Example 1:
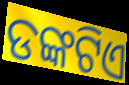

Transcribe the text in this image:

ଡଙ୍କଟିଏ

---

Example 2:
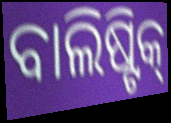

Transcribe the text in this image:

ବାଲିଷ୍ଟିକ୍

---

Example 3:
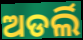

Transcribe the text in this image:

ଅଡର୍ଲି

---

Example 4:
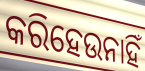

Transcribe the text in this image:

କରିହେଉନାହିଁ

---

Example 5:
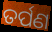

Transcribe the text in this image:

ତର୍ପଣ